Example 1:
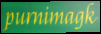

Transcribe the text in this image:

purnimagk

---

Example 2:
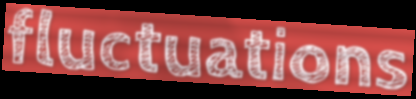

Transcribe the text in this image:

fluctuations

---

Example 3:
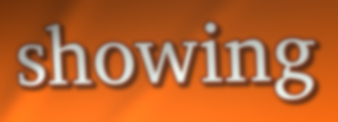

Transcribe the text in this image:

showing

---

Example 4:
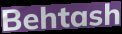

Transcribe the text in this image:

Behtash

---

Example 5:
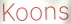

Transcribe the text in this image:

Koons